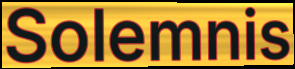
Solemnis